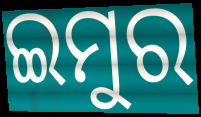
ଇମୁର